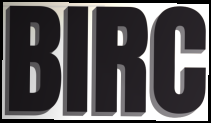
BIRC